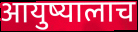
आयुष्यालाच